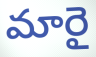
మారై